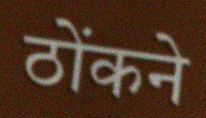
ठोंकने